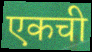
एकची